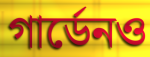
গার্ডেনও